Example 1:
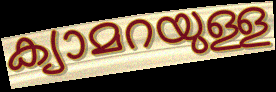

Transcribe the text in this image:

ക്യാമറയുള്ള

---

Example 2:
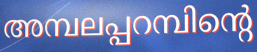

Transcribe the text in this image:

അമ്പലപ്പറമ്പിന്റെ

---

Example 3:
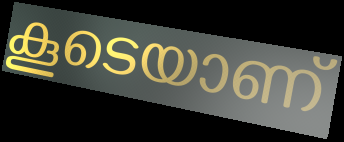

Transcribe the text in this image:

കൂടെയാണ്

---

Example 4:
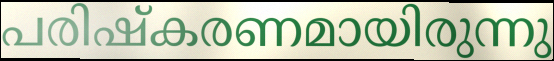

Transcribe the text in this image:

പരിഷ്കരണമായിരുന്നു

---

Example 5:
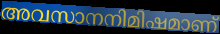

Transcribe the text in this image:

അവസാനനിമിഷമാണ്